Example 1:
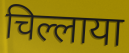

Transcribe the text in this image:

चिल्लाया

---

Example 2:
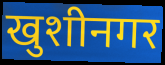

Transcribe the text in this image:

खुशीनगर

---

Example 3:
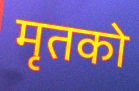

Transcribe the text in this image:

मृतको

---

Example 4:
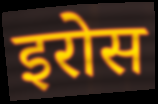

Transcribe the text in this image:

इरोस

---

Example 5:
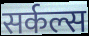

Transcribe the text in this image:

सर्कल्‍स